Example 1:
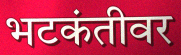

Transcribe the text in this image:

भटकंतीवर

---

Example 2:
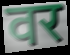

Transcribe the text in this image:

वर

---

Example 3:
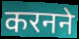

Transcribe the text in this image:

करनने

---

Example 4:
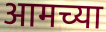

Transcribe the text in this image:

आमच्या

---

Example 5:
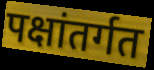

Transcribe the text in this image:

पक्षांतर्गत